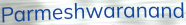
Parmeshwaranand